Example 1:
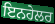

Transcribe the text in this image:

ਇਨਹੇਲਰ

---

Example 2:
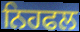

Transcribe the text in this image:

ਨਿਹਫਲ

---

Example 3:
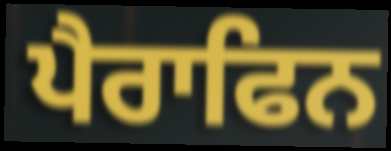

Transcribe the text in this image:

ਪੈਰਾਫਿਨ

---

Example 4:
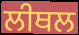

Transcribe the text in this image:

ਲੀਥਲ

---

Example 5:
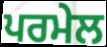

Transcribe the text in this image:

ਪਰਮੇਲ